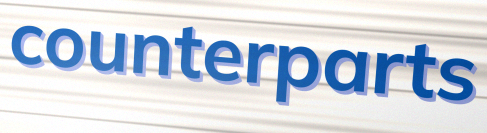
counterparts